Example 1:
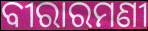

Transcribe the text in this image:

ବୀରାରମଣୀ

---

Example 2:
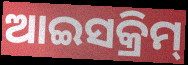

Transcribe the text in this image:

ଆଇସକ୍ରିମ୍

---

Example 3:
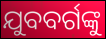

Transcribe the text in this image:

ଯୁବବର୍ଗଙ୍କୁ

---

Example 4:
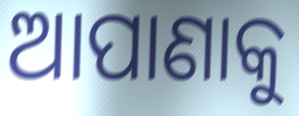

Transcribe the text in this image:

ଆପାଣାକୁ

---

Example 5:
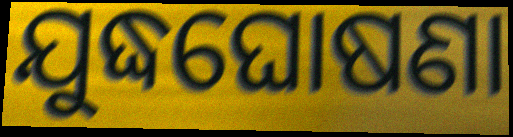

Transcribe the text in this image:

ଯୁଦ୍ଧଘୋଷଣା